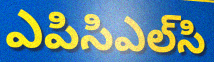
ఎపిసిఎల్‌సి